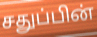
சதுப்பின்